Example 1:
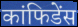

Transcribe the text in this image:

कांफिडेंस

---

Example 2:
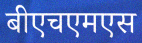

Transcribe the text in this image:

बीएचएमएस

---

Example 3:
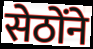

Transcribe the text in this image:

सेठोंने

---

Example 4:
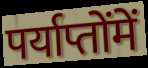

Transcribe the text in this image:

पर्याप्तोंमें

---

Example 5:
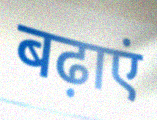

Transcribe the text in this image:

बढ़ाएं